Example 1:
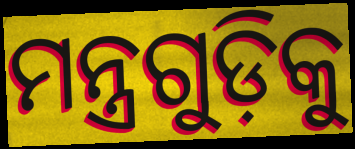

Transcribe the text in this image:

ମନ୍ତ୍ରଗୁଡ଼ିକୁ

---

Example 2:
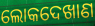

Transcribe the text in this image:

ଲୋକଦେଖାଣ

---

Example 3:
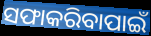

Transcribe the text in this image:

ସଫାକରିବାପାଇଁ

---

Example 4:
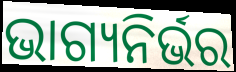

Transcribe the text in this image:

ଭାଗ୍ୟନିର୍ଭର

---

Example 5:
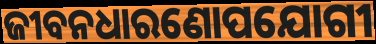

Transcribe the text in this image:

ଜୀବନଧାରଣୋପଯୋଗୀ